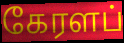
கேரளப்